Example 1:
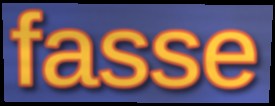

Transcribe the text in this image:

fasse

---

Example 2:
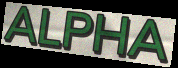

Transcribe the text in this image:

ALPHA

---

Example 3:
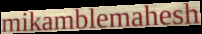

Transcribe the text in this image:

mikamblemahesh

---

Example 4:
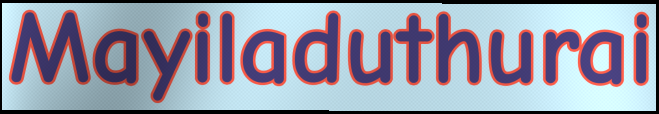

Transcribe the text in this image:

Mayiladuthurai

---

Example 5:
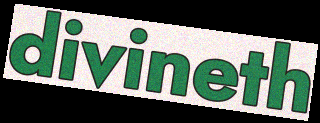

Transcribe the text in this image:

divineth